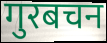
गुरबचन